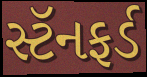
સ્ટૅનફર્ડ